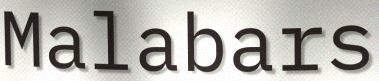
Malabars